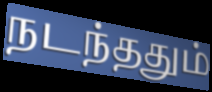
நடந்ததும்